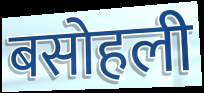
बसोहली